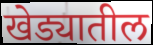
खेड्यातील